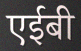
एईबी